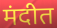
मंदीत